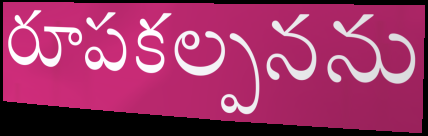
రూపకల్పనను